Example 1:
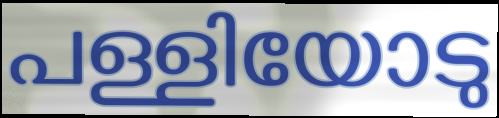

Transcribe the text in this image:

പള്ളിയോടു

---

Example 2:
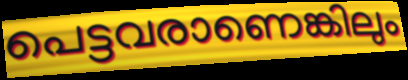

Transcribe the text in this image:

പെട്ടവരാണെങ്കിലും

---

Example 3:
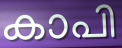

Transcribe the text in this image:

കാപി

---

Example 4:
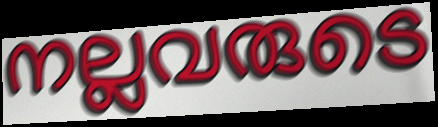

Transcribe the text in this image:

നല്ലവരുടെ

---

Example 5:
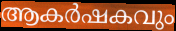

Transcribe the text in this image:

ആകർഷകവും